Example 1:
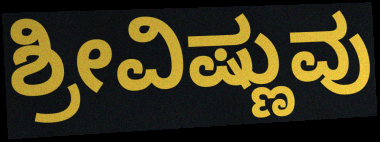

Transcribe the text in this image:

ಶ್ರೀವಿಷ್ಣುವು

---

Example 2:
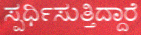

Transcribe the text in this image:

ಸ್ಪರ್ಧಿಸುತ್ತಿದ್ದಾರೆ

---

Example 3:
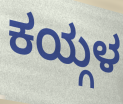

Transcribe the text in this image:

ಕಯ್ಗಳ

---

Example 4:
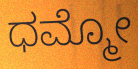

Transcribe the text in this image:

ಧಮ್ಮೋ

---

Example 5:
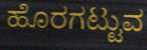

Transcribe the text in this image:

ಹೊರಗಟ್ಟುವ